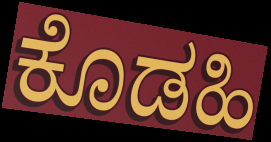
ಕೊಡಹಿ